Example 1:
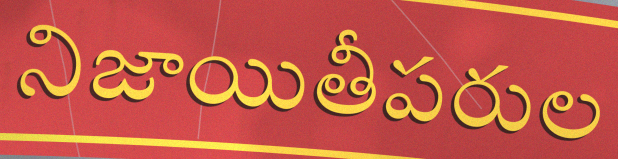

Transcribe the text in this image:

నిజాయితీపరుల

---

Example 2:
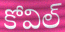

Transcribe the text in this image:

కోవిల్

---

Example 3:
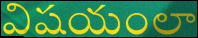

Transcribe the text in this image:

విషయంలా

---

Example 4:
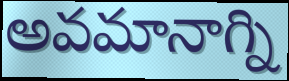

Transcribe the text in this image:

అవమానాగ్ని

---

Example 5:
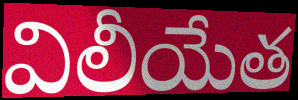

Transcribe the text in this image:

విలీయేత